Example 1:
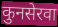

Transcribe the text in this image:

कुनसेरवा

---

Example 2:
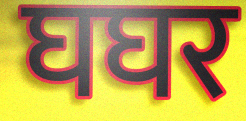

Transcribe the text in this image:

घघर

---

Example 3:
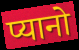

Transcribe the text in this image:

प्यानो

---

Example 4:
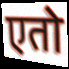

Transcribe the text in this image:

एतो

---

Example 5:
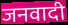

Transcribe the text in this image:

जनवादी